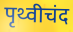
पृथ्वीचंद